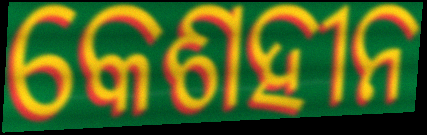
କେଶହୀନ